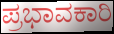
ಪ್ರಭಾವಕಾರಿ